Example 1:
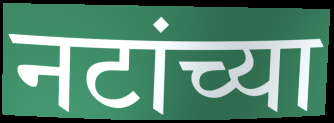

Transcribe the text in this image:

नटांच्या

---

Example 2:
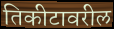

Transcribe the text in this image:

तिकीटावरील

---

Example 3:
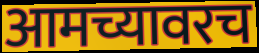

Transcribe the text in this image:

आमच्यावरच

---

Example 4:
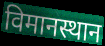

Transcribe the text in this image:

विमानस्थान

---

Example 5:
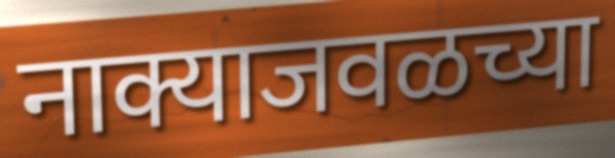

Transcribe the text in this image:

नाक्याजवळच्या